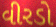
વીરડો